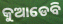
କୁଆଡେବି